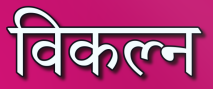
विकल्न